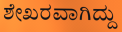
ಶೇಖರವಾಗಿದ್ದು